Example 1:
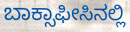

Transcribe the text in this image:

ಬಾಕ್ಸಾಫೀಸಿನಲ್ಲಿ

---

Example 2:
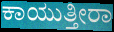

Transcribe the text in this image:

ಕಾಯುತ್ತೀರಾ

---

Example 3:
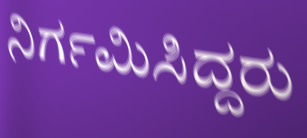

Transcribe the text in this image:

ನಿರ್ಗಮಿಸಿದ್ದರು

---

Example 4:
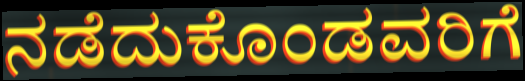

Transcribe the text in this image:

ನಡೆದುಕೊಂಡವರಿಗೆ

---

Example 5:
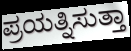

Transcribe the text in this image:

ಪ್ರಯತ್ನಿಸುತ್ತಾ